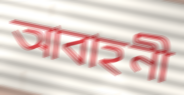
আবাহনী